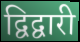
द्विद्वारी